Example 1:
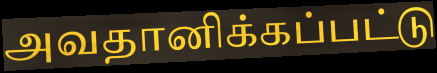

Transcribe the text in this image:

அவதானிக்கப்பட்டு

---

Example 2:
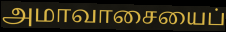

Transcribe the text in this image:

அமாவாசையைப்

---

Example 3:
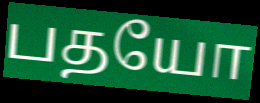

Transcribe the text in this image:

பதயோ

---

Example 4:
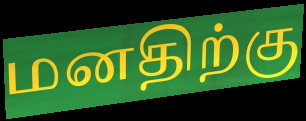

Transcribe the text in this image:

மனதிற்கு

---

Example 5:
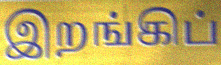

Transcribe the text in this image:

இறங்கிப்